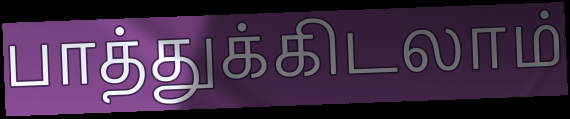
பாத்துக்கிடலாம்